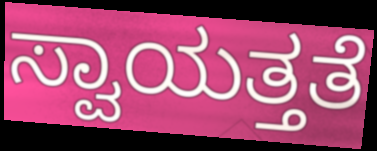
ಸ್ವಾಯತ್ತತೆ